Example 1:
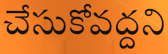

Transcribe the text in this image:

చేసుకోవద్దని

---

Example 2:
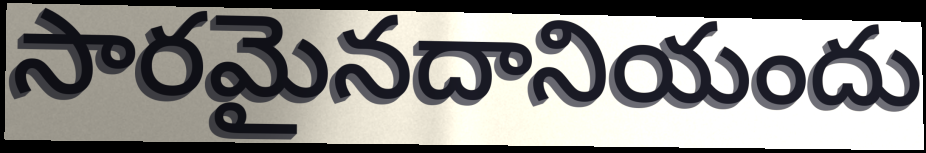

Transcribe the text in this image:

సారమైనదానియందు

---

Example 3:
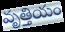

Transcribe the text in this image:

వృత్తియం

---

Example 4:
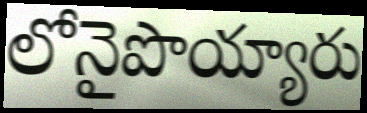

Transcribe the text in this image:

లోనైపొయ్యారు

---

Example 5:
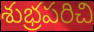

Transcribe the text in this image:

శుభ్రపరిచి